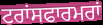
ਟਰਾਂਸਫਾਰਮਰਾਂ